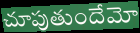
చూపుతుందేమో